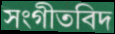
সংগীতবিদ